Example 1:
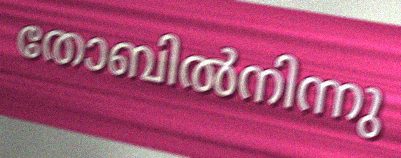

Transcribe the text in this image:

തോബിൽനിന്നു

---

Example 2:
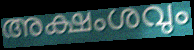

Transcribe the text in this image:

അക്ഷംശവും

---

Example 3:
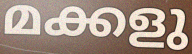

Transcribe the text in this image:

മക്കളു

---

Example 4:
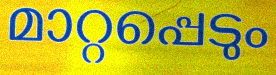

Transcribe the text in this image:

മാറ്റപ്പെടും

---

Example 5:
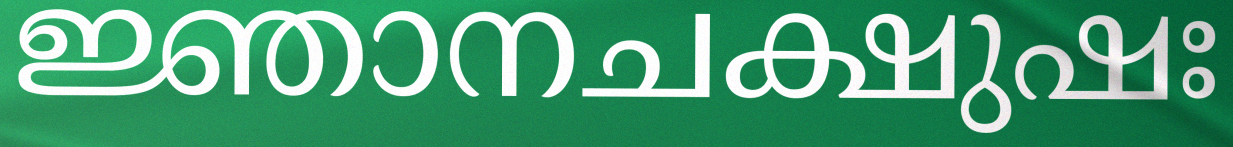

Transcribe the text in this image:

ജ്ഞാനചക്ഷുഷഃ